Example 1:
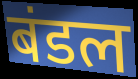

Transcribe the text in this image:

बंडल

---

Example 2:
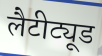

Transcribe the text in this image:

लैटीट्यूड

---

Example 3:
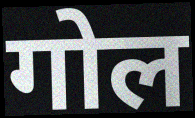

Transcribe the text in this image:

गोल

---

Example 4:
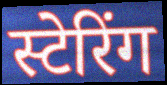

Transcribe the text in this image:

स्टेरिंग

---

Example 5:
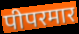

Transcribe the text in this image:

पीपरमार